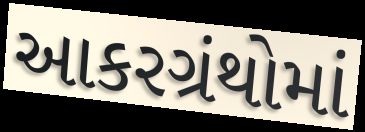
આકરગ્રંથોમાં